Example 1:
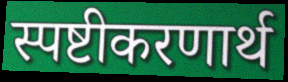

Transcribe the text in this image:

स्पष्टीकरणार्थ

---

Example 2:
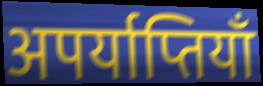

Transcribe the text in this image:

अपर्याप्तियाँ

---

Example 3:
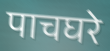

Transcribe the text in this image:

पाचघरे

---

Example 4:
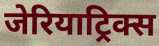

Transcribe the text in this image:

जेरियाट्रिक्स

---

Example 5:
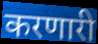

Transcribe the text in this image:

करणारी